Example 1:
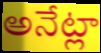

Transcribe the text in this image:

అనేట్లా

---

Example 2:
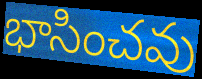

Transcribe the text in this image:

భాసించవు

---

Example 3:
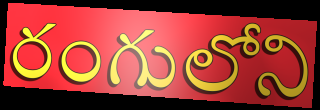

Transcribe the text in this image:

రంగులోని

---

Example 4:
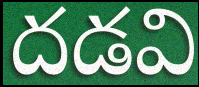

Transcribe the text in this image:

దడవి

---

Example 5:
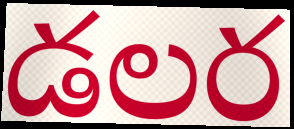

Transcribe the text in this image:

డలర